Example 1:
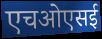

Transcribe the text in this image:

एचओएसई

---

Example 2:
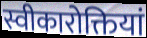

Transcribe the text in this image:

स्वीकारोक्तियां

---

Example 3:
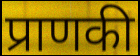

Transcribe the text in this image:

प्राणकी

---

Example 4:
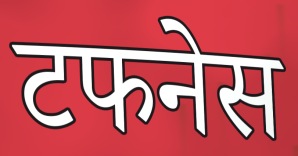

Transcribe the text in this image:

टफनेस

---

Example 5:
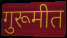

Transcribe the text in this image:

गुरूमीत